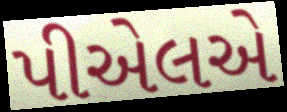
પીએલએ